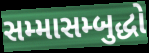
સમ્માસમ્બુદ્ધો